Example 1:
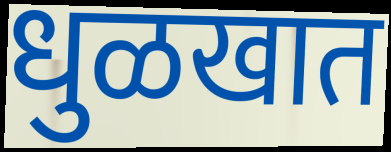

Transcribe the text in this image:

धुळखात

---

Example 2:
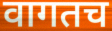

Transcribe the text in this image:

वागतच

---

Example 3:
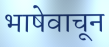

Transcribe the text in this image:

भाषेवाचून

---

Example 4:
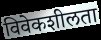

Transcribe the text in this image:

विवेकशीलता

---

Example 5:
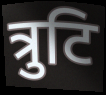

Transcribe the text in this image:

त्रुटि